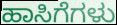
ಹಾಸಿಗೆಗಳು